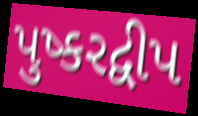
પુષ્કરદ્વીપ